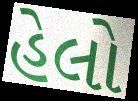
હેલો